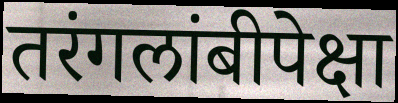
तरंगलांबीपेक्षा